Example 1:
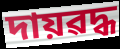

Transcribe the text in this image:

দায়ৱদ্ধ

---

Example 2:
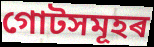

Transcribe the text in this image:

গোটসমূহৰ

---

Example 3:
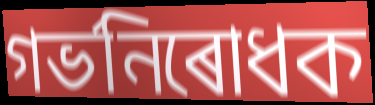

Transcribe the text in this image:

গৰ্ভনিৰোধক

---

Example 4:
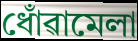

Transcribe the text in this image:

ধোঁৱামেলা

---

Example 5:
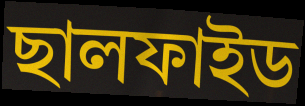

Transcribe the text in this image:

ছালফাইড